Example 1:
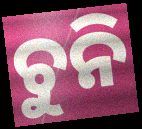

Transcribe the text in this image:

ଚୁନି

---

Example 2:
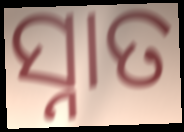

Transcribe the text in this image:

ସ୍ନାତ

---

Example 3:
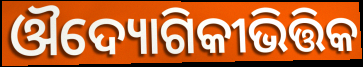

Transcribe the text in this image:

ଔଦ୍ୟୋଗିକୀଭିତ୍ତିକ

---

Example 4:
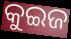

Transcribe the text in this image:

କୁଇଜ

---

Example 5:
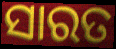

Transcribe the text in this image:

ସାରତ